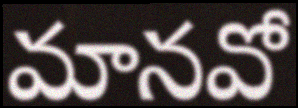
మానవో